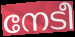
നേടീ